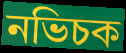
নভিচক